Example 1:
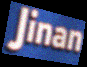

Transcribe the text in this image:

Jinan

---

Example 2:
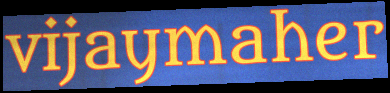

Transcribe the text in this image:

vijaymaher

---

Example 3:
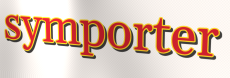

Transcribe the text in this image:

symporter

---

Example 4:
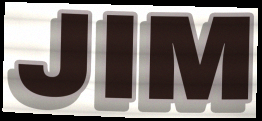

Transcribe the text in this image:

JIM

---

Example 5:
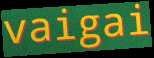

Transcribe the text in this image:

vaigai